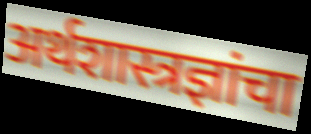
अर्थशास्त्रज्ञांचा